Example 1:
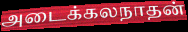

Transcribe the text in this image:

அடைக்கலநாதன்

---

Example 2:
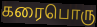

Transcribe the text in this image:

கரைபொரு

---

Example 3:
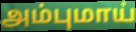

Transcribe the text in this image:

அம்புமாய்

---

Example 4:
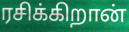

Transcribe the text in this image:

ரசிக்கிறான்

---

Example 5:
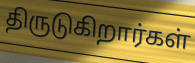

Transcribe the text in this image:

திருடுகிறார்கள்